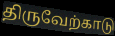
திருவேற்காடு